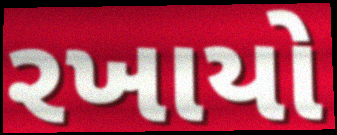
રખાયો